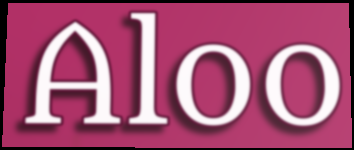
Aloo